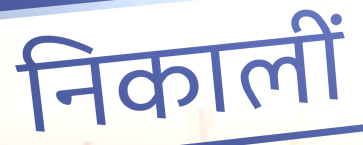
निकालीं